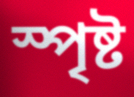
স্পৃষ্ট